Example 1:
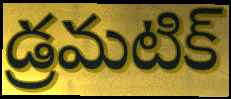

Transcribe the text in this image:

డ్రమటిక్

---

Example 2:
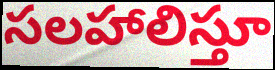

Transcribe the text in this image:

సలహాలిస్తూ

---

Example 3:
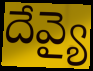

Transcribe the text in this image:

దేవ్యై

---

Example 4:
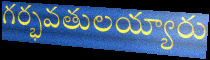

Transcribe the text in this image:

గర్భవతులయ్యారు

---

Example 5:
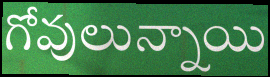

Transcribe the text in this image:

గోవులున్నాయి